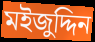
মইজুদ্দিন